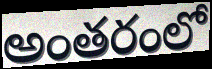
అంతరంలో